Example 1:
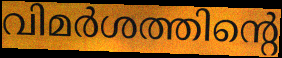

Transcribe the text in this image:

വിമർശത്തിന്റെ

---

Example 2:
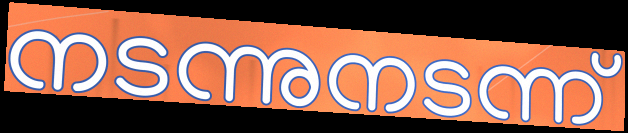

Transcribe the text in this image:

നടന്നുനടന്ന്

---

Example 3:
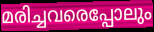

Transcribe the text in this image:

മരിച്ചവരെപ്പോലും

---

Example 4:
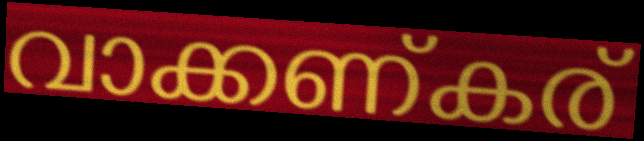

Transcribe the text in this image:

വാക്കണ്കര്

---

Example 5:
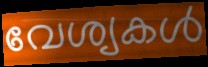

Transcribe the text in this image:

വേശ്യകൾ